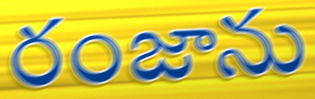
రంజాను